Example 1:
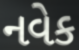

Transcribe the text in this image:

નવેક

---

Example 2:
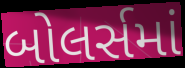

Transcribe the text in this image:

બોલર્સમાં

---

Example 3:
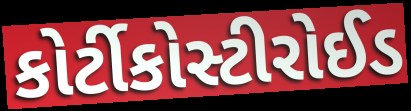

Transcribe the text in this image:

કોર્ટીકોસ્ટીરોઈડ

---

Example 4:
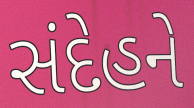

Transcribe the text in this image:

સંદેહને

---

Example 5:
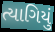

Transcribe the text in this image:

ત્યાગિયું